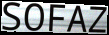
SOFAZ